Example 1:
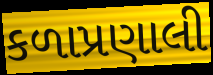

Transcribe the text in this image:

કળાપ્રણાલી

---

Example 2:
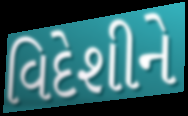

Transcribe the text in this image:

વિદેશીને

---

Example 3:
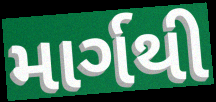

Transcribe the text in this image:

માર્ગથી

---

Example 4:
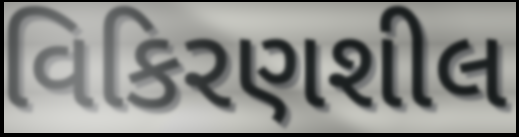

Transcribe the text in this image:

વિકિરણશીલ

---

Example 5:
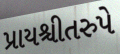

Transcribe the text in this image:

પ્રાયશ્ચીતરુપે